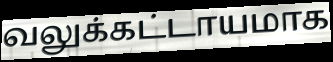
வலுக்கட்டாயமாக